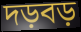
দড়বড়